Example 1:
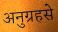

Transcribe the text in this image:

अनुग्रहसे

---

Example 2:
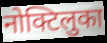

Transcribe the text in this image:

नोक्टिलुका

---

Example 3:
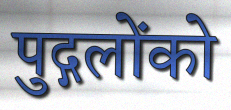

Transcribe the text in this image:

पुद्गलोंको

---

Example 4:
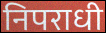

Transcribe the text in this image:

निपराधी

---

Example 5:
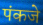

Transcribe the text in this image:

पंकजे